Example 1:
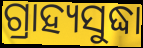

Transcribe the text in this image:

ଗ୍ରାହ୍ୟସୁଦ୍ଧା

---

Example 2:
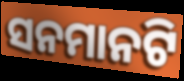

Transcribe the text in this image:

ସନମାନଟି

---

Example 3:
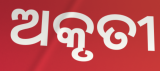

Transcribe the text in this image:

ଅକୃତୀ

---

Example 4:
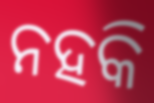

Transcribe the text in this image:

ନହକି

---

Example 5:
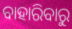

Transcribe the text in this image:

ବାହାରିବାରୁ